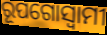
ରୂପଗୋସ୍ୱାମୀ